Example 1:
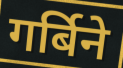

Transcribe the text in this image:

गर्बिने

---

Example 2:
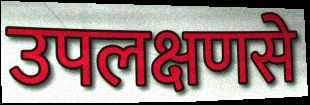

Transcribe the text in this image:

उपलक्षणसे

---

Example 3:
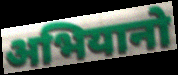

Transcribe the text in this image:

अभियानो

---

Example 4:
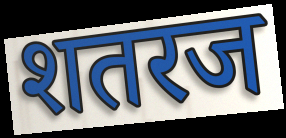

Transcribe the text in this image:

शतरज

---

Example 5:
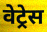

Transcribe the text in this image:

वेट्रेस